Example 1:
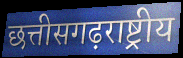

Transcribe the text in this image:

छत्तीसगढ़राष्ट्रीय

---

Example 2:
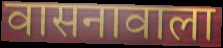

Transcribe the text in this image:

वासनावाला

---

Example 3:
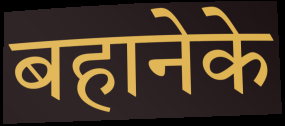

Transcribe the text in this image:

बहानेके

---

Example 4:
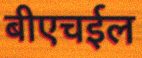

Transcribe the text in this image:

बीएचईल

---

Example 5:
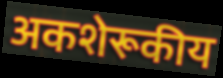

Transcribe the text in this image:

अकशेरूकीय